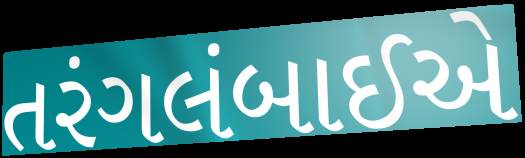
તરંગલંબાઈએ